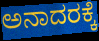
ಅನಾದರಕ್ಕೆ